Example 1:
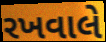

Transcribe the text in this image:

રખવાલે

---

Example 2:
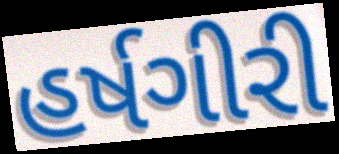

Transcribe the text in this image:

હર્ષગીરી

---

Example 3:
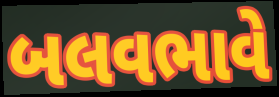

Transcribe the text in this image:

બલવભાવે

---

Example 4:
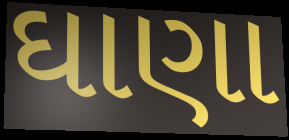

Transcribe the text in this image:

ઘાણા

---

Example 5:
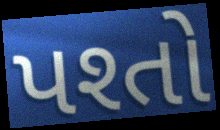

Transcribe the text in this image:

પશ્તો